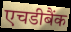
एचडीबैंक